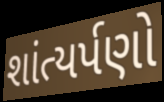
શાંત્યર્પણો